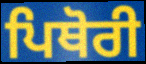
ਪਿਥੋਰੀ